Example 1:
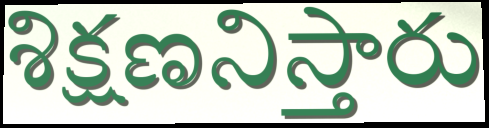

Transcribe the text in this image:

శిక్షణనిస్తారు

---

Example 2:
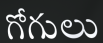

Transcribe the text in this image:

గోగులు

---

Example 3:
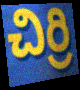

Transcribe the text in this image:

చిర్రి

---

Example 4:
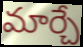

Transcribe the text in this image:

మార్చే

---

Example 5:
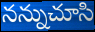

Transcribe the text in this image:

నన్నుచూసి